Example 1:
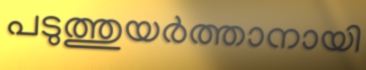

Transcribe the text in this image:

പടുത്തുയർത്താനായി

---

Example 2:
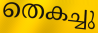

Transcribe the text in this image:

തെകച്ചു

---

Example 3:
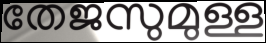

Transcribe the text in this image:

തേജസുമുള്ള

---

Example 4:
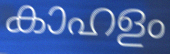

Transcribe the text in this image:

കാഹളം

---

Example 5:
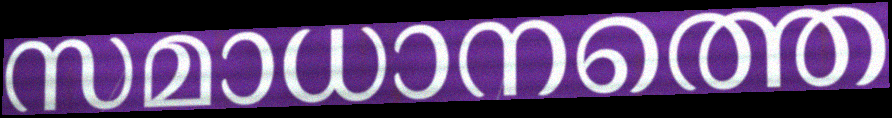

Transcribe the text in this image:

സമാധാനത്തെ